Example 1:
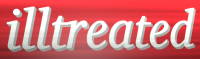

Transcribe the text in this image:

illtreated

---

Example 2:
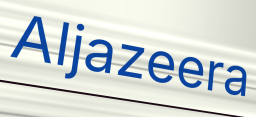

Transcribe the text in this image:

Aljazeera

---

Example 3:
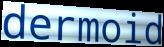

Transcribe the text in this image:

dermoid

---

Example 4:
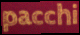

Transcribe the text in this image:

pacchi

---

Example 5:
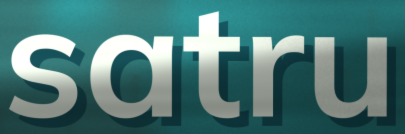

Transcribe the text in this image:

satru